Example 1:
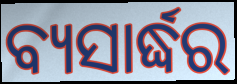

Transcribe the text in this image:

ବ୍ୟସାର୍ଦ୍ଧର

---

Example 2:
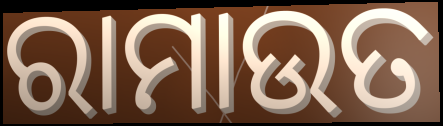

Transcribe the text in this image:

ରାମାଉତ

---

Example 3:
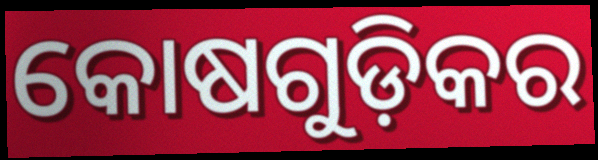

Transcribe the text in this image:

କୋଷଗୁଡ଼ିକର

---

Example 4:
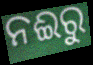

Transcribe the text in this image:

ନଈରୁ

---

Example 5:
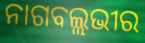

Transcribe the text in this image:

ନାଗବଲ୍ଲଭୀର